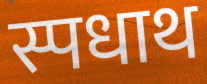
स्पधाथ